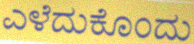
ಎಳೆದುಕೊಂದು